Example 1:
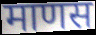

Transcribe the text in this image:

माणस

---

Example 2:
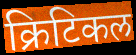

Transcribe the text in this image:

क्रिटिकल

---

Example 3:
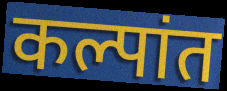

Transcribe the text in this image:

कल्पांत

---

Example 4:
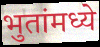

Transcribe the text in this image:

भुतांमध्ये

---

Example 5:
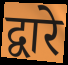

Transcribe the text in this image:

द्वारे